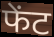
फेंट